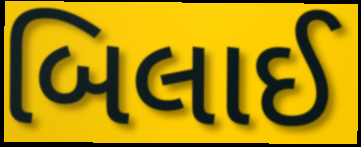
બિલાઈ